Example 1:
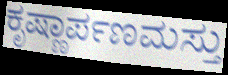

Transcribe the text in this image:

ಕೃಷ್ಣಾರ್ಪಣಮಸ್ತು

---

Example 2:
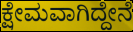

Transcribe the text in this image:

ಕ್ಷೇಮವಾಗಿದ್ದೇನೆ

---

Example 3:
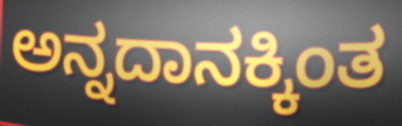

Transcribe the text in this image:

ಅನ್ನದಾನಕ್ಕಿಂತ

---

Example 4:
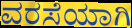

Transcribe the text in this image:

ವರಸೆಯಾಗಿ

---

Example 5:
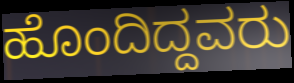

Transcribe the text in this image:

ಹೊಂದಿದ್ದವರು